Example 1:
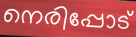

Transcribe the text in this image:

നെരിപ്പോട്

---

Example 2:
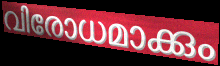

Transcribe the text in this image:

വിരോധമാക്കും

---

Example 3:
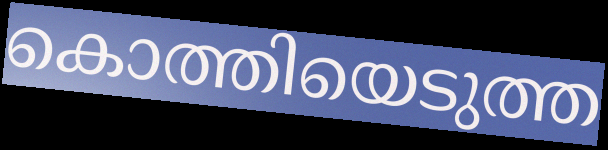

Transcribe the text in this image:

കൊത്തിയെടുത്ത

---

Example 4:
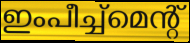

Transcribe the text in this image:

ഇംപീച്ച്മെന്റ്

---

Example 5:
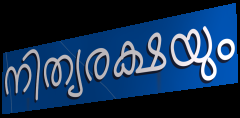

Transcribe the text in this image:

നിത്യരക്ഷയും